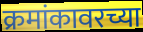
क्रमांकावरच्या